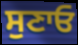
ਸੁਣਾਓ